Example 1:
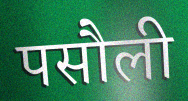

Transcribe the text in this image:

पसौली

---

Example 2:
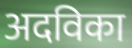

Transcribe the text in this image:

अदविका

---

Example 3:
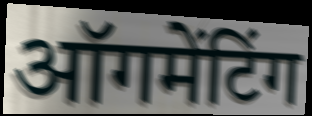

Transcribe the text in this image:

ऑगमेंटिंग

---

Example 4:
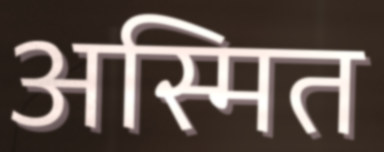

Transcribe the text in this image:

अस्मित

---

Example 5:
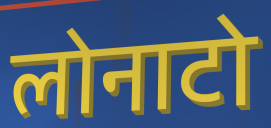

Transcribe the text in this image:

लोनाटो